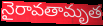
నైరావతామృత